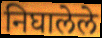
निघालेले